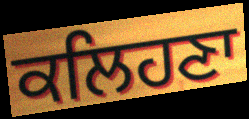
ਕਲਿਹਣਾ